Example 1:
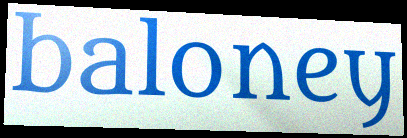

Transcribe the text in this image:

baloney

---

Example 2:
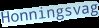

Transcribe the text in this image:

Honningsvag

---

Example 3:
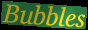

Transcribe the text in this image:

Bubbles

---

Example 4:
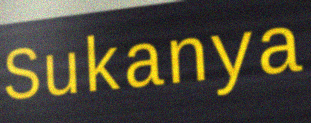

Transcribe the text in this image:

Sukanya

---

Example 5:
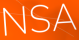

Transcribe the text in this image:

NSA